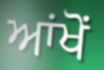
ਆਂਖੋਂ